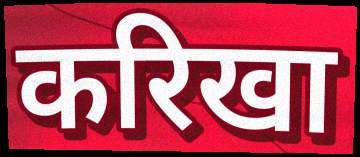
करिखा